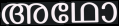
അഥോ